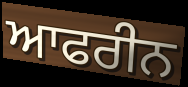
ਆਫਰੀਨ